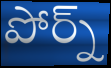
పోర్న్